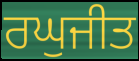
ਰਘੁਜੀਤ